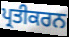
ਪ੍ਰਤੀਕਰਨ